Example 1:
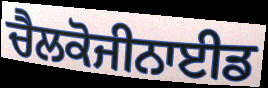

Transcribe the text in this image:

ਚੈਲਕੋਜੀਨਾਈਡ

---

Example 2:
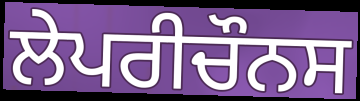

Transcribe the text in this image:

ਲੇਪਰੀਚੌਨਸ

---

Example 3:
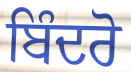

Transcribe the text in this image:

ਬਿੰਦਰੋ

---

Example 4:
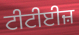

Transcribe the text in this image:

ਟੀਟੀਈਜ਼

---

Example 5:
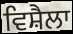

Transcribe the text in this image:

ਵਿਸ਼ੈਲਾ